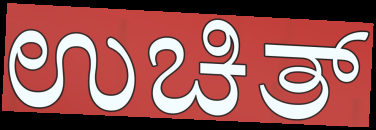
ಉಚಿತ್